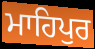
ਮਾਹਿਪੁਰ